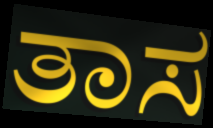
ತಾಸ